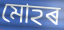
মোহৰ